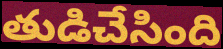
తుడిచేసింది